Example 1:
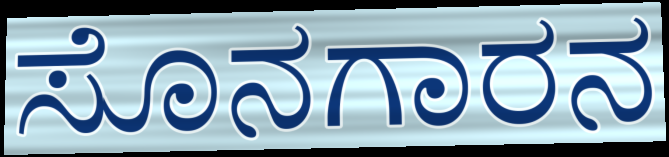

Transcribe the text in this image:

ಸೊನಗಾರನ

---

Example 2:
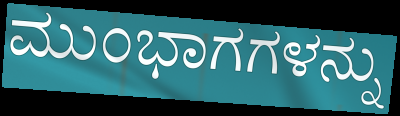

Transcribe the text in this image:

ಮುಂಭಾಗಗಳನ್ನು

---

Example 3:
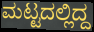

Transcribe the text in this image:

ಮಟ್ಟದಲ್ಲಿದ್ದ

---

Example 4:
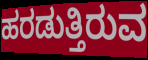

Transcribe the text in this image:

ಹರಡುತ್ತಿರುವ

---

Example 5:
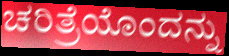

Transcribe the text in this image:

ಚರಿತ್ರೆಯೊಂದನ್ನು